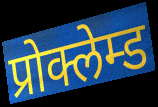
प्रोक्लेम्ड